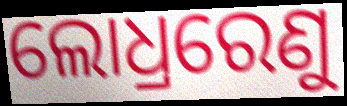
ଲୋଧ୍ରରେଣୁ